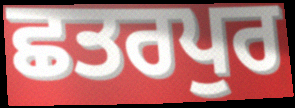
ਛਤਰਪੁਰ